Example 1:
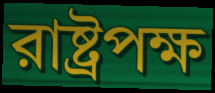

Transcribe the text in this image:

রাষ্ট্রপক্ষ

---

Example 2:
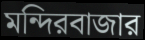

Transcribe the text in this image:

মন্দিরবাজার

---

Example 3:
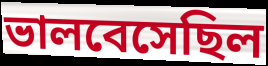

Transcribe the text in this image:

ভালবেসেছিল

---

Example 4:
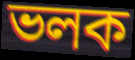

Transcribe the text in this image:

ভলক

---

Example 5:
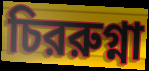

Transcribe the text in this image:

চিররুগ্না